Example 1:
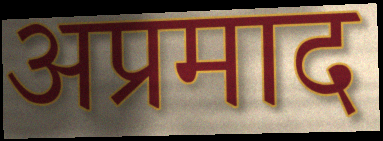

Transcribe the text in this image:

अप्रमाद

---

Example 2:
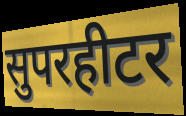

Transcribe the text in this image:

सुपरहीटर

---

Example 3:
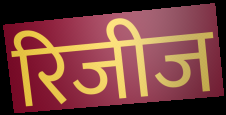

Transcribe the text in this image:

रिजीज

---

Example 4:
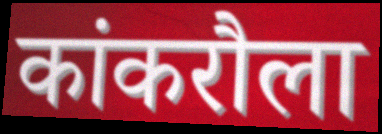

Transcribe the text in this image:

कांकरौला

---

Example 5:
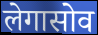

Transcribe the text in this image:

लेगासोव